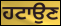
ਹਟਾਉਣ